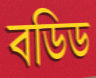
বডিড